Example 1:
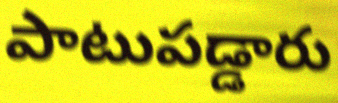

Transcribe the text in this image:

పాటుపడ్డారు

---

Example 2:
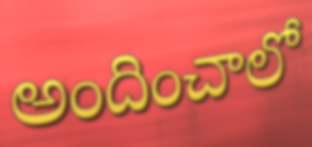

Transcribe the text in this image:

అందించాలో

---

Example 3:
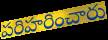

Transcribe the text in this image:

పరిహరించారు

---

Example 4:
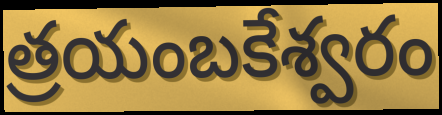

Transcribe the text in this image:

త్రయంబకేశ్వరం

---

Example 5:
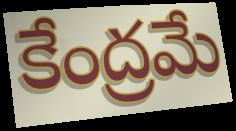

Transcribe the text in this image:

కేంద్రమే